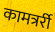
कामत्रर्री